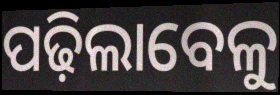
ପଢ଼ିଲାବେଳୁ